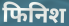
फिनिश